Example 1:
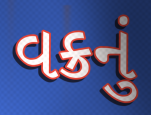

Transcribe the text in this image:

વક્રનું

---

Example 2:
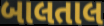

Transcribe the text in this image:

બાલતાલ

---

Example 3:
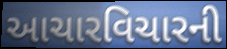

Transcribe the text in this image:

આચારવિચારની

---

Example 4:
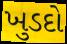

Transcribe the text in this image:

ખુડદો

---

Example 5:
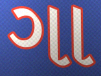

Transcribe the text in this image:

ગા